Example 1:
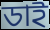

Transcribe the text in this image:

ডাই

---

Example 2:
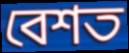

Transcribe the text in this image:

বেশত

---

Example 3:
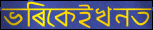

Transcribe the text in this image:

ভৰিকেইখনত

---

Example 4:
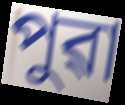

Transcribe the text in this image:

পুৱা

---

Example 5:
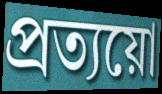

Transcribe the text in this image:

প্ৰত্যয়ো